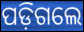
ପଡ଼ିଗଲେ